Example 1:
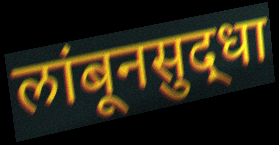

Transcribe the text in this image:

लांबूनसुद्धा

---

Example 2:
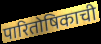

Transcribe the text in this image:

पारितोषिकाची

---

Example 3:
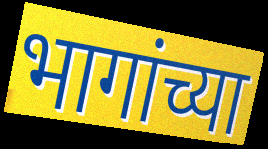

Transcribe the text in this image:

भागांच्या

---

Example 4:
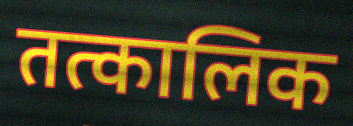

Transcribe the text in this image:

तत्कालिक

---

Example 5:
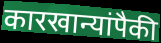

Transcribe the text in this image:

कारखान्यांपैकी